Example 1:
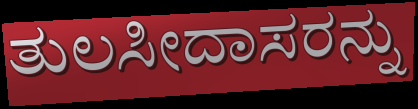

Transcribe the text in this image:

ತುಲಸೀದಾಸರನ್ನು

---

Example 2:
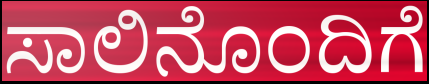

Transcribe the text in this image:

ಸಾಲಿನೊಂದಿಗೆ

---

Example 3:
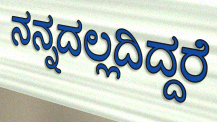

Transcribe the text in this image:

ನನ್ನದಲ್ಲದಿದ್ದರೆ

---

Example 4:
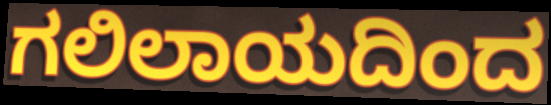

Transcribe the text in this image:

ಗಲಿಲಾಯದಿಂದ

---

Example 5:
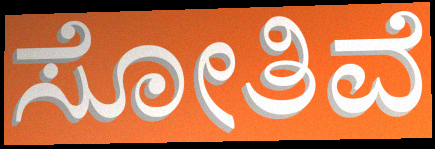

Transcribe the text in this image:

ಸೋತಿವೆ